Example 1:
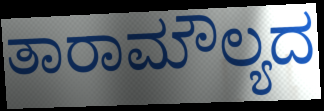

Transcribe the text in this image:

ತಾರಾಮೌಲ್ಯದ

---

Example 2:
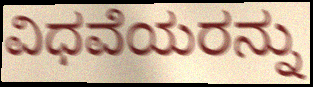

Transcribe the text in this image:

ವಿಧವೆಯರನ್ನು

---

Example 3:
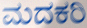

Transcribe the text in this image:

ಮದಕರಿ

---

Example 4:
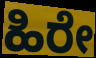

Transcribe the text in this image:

ಹಿರೇ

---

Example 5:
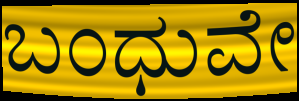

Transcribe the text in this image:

ಬಂಧುವೇ